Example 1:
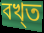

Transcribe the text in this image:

বখ্ত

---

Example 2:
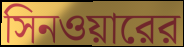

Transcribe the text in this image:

সিনওয়ারের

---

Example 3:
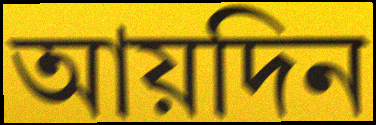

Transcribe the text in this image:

আয়দিন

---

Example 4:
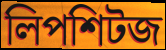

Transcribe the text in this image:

লিপশিটজ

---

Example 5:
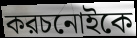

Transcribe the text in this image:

করচনোইকে